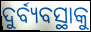
ଦୁର୍ବ୍ୟବସ୍ଥାକୁ